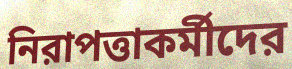
নিরাপত্তাকর্মীদের